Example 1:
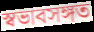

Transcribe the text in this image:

স্বভাবসঙ্গত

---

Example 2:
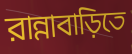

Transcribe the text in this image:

রান্নাবাড়িতে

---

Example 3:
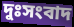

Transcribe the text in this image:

দুঃসংবাদ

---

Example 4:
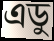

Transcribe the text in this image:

এডু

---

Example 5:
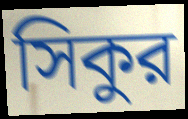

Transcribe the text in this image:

সিকুর